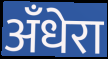
अँधेरा